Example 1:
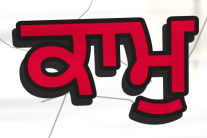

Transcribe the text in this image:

ਕਾਮੁ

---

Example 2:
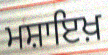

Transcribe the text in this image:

ਮਸ਼ਾਇਖ਼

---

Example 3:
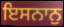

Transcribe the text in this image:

ਇਸਨਾਨੁ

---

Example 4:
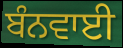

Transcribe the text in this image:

ਬੰਨਵਾਈ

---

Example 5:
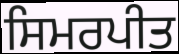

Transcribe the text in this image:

ਸਿਮਰਪੀਤ